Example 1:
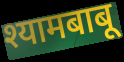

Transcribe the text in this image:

श्यामबाबू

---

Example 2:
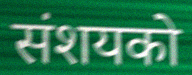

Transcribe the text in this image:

संशयको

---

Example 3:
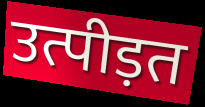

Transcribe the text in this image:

उत्पीड़त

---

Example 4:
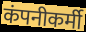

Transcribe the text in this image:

कंपनीकर्मी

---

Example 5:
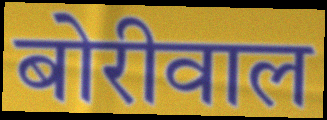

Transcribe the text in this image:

बोरीवाल